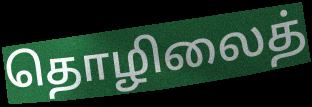
தொழிலைத்